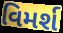
વિમર્શ